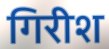
गिरीश